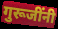
गुरूजींनी